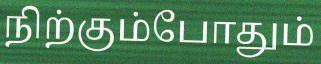
நிற்கும்போதும்